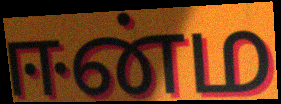
ஈன்ம